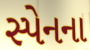
સ્પેનના